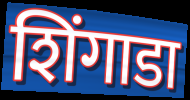
शिंगाडा